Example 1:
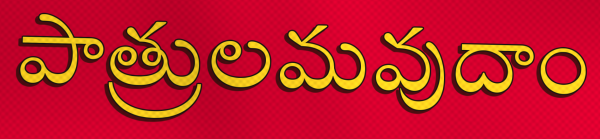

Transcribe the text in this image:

పాత్రులమవుదాం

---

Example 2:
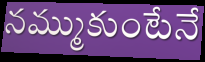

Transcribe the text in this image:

నమ్ముకుంటేనే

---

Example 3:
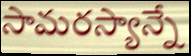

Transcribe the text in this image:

సామరస్యాన్నే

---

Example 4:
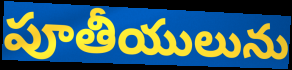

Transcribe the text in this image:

పూతీయులును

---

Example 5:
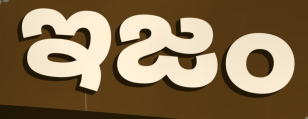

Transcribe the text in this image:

ఇజం